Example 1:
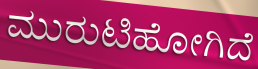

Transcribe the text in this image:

ಮುರುಟಿಹೋಗಿದೆ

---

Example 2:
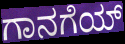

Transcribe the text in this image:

ಗಾನಗೆಯ್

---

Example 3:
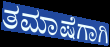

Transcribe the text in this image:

ತಮಾಷೆಗಾಗಿ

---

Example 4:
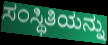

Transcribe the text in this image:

ಸಂಸ್ಥಿತಿಯನ್ನು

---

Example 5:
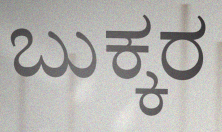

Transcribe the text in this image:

ಬುಕ್ಕರ